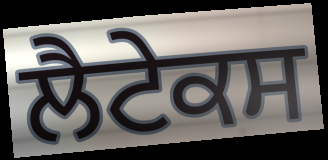
ਲੈਟੇਕਸ